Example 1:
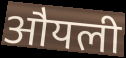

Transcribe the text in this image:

औयली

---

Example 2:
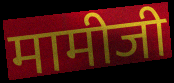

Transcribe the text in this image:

मामीजी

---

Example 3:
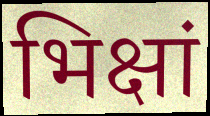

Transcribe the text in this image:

भिक्षां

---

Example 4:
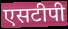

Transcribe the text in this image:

एसटीपी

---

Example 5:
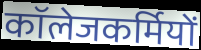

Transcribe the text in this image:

कॉलेजकर्मियों